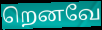
றெனவே